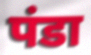
पंडा